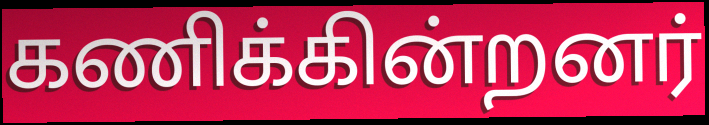
கணிக்கின்றனர்